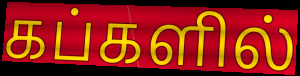
கப்களில்